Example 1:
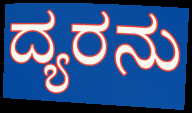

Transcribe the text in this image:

ದ್ಯರನು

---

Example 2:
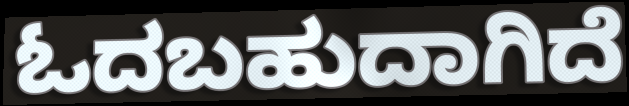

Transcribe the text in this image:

ಓದಬಹುದಾಗಿದೆ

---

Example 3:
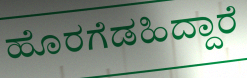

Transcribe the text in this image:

ಹೊರಗೆಡಹಿದ್ದಾರೆ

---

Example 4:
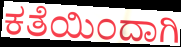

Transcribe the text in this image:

ಕತೆಯಿಂದಾಗಿ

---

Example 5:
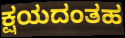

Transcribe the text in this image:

ಕ್ಷಯದಂತಹ